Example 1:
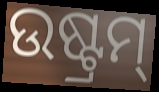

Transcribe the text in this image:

ଉଷ୍ଟ୍ରମ୍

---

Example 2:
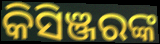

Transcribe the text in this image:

କିସିଞ୍ଜରଙ୍କ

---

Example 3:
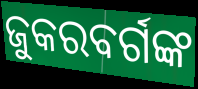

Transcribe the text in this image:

ଜୁକରବର୍ଗଙ୍କ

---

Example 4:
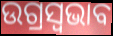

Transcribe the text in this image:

ଉଗ୍ରସ୍ୱଭାବ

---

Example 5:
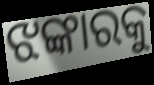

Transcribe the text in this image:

ଝଙ୍କାରକୁ